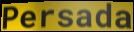
Persada